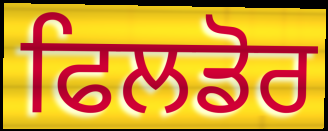
ਫਿਲਡੋਰ